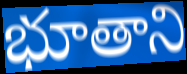
భూతాని